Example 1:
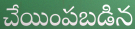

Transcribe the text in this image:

చేయింపబడిన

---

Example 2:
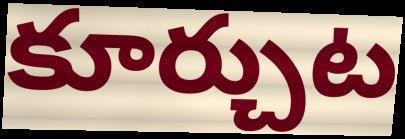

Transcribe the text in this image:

కూర్చుట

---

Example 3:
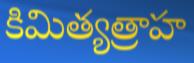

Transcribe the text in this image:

కిమిత్యత్రాహ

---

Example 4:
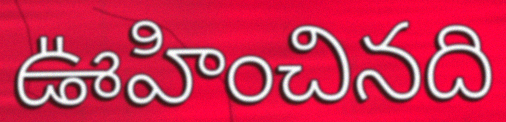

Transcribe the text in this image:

ఊహించినది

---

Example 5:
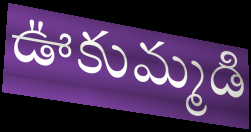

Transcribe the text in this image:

ఊకుమ్మడి